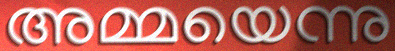
അമ്മയെന്നു